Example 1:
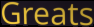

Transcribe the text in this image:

Greats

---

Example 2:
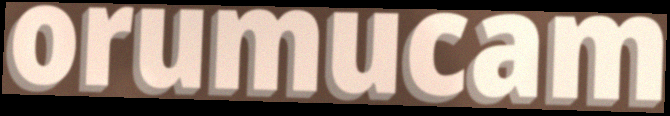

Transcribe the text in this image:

orumucam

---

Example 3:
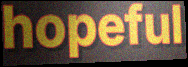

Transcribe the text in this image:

hopeful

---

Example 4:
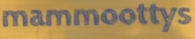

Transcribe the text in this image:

mammoottys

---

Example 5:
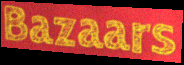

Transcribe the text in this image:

Bazaars